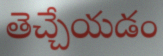
తెచ్చేయడం